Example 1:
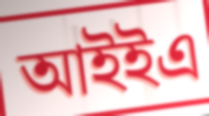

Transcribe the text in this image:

আইইএ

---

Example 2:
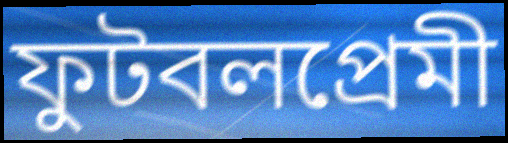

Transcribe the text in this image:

ফুটবলপ্রেমী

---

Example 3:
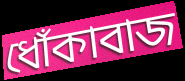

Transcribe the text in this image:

ধোঁকাবাজ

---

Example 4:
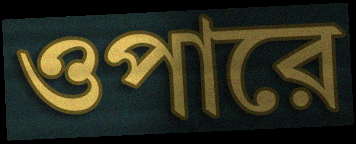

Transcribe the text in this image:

ওপারে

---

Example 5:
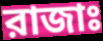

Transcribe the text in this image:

রাজাঃ